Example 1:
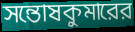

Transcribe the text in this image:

সন্তোষকুমারের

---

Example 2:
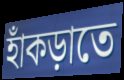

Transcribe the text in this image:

হাঁকড়াতে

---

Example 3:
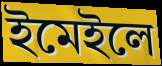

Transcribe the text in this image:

ইমেইলে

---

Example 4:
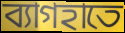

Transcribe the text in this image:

ব্যাগহাতে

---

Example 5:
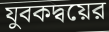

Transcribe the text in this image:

যুবকদ্বয়ের